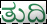
ತುದಿ